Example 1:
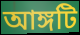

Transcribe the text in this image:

আঙ্গটি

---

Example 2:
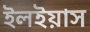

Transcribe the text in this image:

ইলইয়াস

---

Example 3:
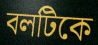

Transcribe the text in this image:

বলটিকে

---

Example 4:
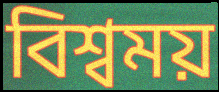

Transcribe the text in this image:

বিশ্বময়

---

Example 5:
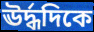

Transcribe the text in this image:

ঊর্দ্ধদিকে